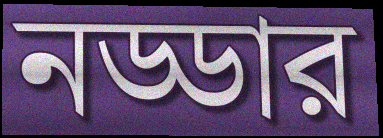
নড্ডার